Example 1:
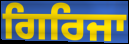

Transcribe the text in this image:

ਗਿਰਿਜਾ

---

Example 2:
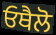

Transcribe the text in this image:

ਓਥੈਲੋ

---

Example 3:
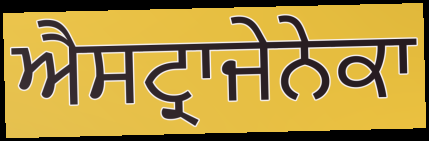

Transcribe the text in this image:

ਐਸਟ੍ਰਾਜੇਨੇਕਾ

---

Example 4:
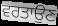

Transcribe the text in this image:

ਵਰਤਾਉਣ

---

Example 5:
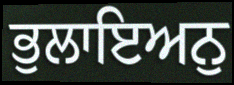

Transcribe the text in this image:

ਭੁਲਾਇਅਨੁ